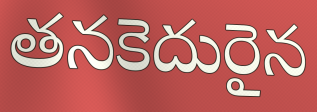
తనకెదురైన